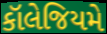
કૉલેજિયમે